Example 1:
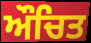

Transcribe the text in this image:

ਔਚਿਤ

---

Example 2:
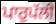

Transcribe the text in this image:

ਪਾਰੁਪੱਲੀ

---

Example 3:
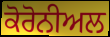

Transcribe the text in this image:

ਕੋਰੋਨੀਅਲ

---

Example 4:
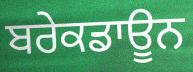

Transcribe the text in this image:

ਬਰੇਕਡਾਊਨ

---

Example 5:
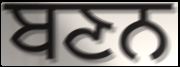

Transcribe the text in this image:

ਬਣਨ